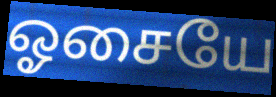
ஓசையே